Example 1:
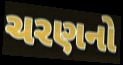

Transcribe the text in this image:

ચરણનો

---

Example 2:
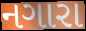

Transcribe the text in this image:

નગારા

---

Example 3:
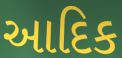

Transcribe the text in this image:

આદિક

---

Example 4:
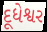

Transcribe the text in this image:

દૂધેશ્વર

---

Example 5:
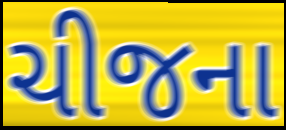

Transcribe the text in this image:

ચીજના